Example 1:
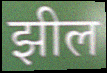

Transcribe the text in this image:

झील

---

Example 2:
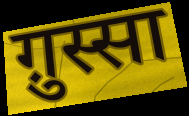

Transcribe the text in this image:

ग़ुस्सा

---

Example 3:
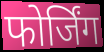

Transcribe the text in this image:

फोर्जिंग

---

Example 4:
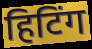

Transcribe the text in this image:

हिटिंग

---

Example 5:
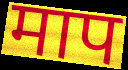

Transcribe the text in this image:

माप